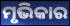
ମୃଭିକାର